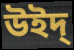
উইদ্